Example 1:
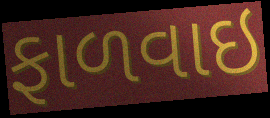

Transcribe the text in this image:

ફાળવાઇ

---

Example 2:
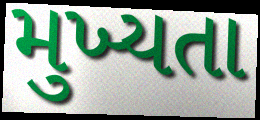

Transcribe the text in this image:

મુખ્યતા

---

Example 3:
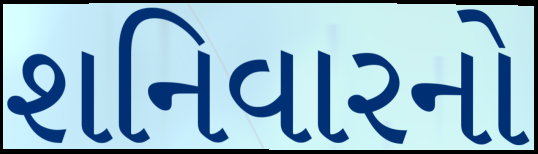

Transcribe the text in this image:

શનિવારનો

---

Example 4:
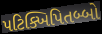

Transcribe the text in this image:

પટિક્ખિપિતબ્બો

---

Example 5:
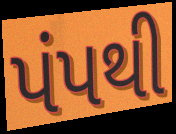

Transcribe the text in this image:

પંપથી